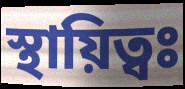
স্থায়িত্বঃ